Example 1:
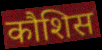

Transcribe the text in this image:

कौशिस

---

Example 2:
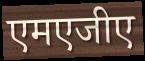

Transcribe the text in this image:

एमएजीए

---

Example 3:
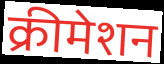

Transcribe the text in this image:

क्रीमेशन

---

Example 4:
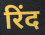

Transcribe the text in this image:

रिंद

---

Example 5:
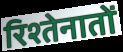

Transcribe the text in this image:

रिश्तेनातों